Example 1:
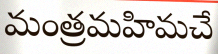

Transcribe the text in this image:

మంత్రమహిమచే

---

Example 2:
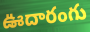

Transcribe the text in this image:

ఊదారంగు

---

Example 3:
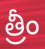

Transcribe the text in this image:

త్రీం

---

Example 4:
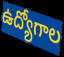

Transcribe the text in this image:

ఉద్యోగాల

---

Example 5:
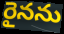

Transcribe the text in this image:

రైనను